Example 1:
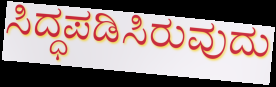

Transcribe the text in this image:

ಸಿದ್ಧಪಡಿಸಿರುವುದು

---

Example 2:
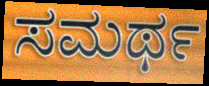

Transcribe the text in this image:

ಸಮರ್ಥ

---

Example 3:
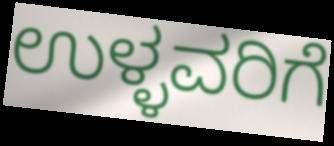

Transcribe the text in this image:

ಉಳ್ಳವರಿಗೆ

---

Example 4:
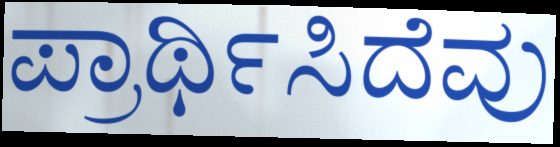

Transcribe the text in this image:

ಪ್ರಾರ್ಥಿಸಿದೆವು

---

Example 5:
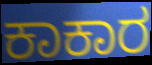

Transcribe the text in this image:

ಕಾಕಾರ